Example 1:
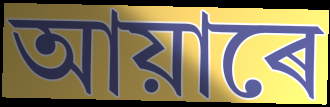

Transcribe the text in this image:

আয়াৰে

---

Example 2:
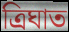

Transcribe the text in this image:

ত্ৰিঘাত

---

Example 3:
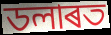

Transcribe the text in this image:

ডলাৰত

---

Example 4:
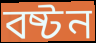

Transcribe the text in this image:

বষ্টন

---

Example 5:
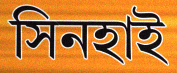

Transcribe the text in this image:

সিনহাই